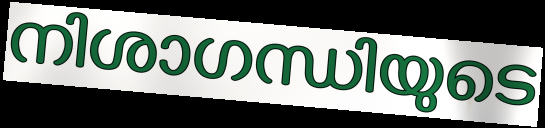
നിശാഗന്ധിയുടെ